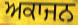
ਅਕਾਜਨ